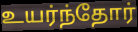
உயர்ந்தோர்